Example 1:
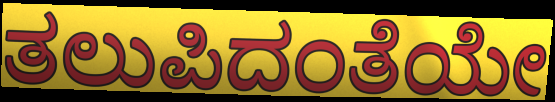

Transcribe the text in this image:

ತಲುಪಿದಂತೆಯೇ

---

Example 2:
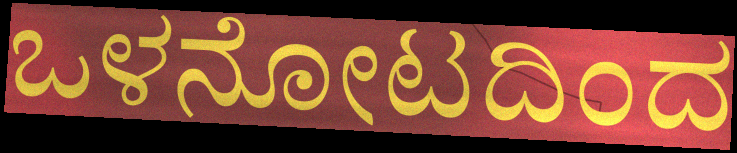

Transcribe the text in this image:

ಒಳನೋಟದಿಂದ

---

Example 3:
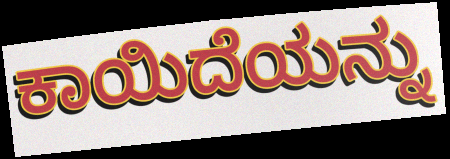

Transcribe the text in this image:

ಕಾಯಿದೆಯನ್ನು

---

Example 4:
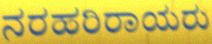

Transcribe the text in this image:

ನರಹರಿರಾಯರು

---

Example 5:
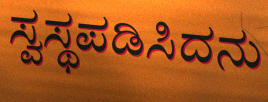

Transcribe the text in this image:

ಸ್ವಸ್ಥಪಡಿಸಿದನು